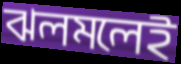
ঝলমলেই